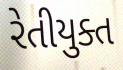
રેતીયુક્ત